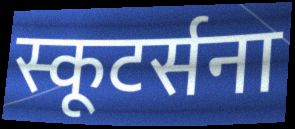
स्कूटर्सना